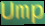
Ump